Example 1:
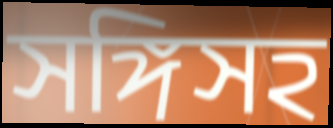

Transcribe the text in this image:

সঙ্গিসহ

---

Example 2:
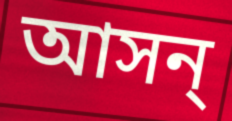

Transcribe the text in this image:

আসন্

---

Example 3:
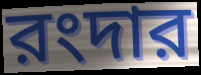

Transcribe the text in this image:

রংদার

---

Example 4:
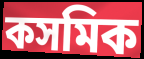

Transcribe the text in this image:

কসমিক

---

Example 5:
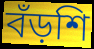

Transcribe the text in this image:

বঁড়শি